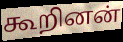
கூறினன்